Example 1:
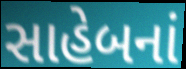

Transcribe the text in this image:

સાહેબનાં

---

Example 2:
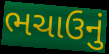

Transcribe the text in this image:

ભચાઉનું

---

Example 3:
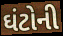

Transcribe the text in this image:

ઘંટોની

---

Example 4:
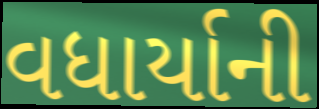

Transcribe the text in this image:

વધાર્યાની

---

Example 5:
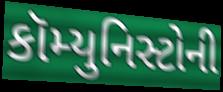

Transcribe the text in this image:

કૉમ્યુનિસ્ટોની